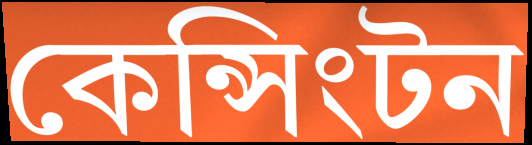
কেন্সিংটন